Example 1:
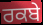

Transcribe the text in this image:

ਰਕਬੇ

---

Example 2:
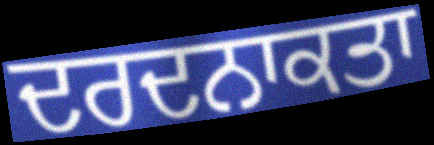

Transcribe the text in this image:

ਦਰਦਨਾਕਤਾ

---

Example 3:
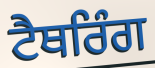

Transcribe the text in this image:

ਟੈਥਰਿੰਗ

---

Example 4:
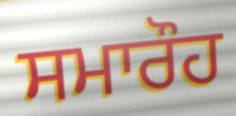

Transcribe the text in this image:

ਸਮਾਰੌਹ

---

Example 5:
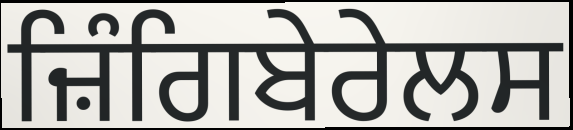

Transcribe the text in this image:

ਜ਼ਿੰਗਿਬੇਰੇਲਸ